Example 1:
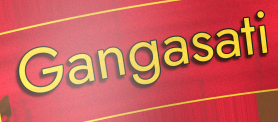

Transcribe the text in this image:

Gangasati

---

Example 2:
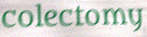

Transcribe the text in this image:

colectomy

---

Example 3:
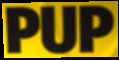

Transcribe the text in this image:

PUP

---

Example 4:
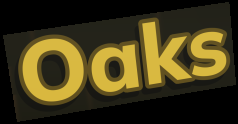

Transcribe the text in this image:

Oaks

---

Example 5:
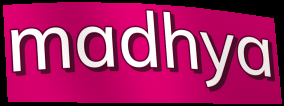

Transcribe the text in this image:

madhya